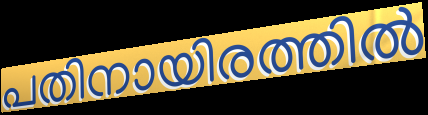
പതിനായിരത്തിൽ